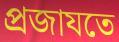
প্রজাযতে